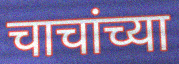
चाचांच्या